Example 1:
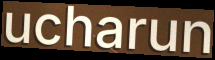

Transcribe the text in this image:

ucharun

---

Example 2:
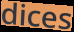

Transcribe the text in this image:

dices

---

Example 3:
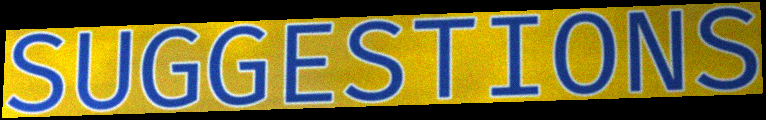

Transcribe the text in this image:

SUGGESTIONS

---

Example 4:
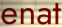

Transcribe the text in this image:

enat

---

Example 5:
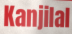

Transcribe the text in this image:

Kanjilal